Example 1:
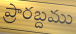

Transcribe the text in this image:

ప్రారబ్దము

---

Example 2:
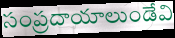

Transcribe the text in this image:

సంప్రదాయాలుండేవి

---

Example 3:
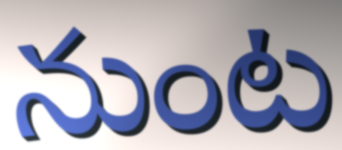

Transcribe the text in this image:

నుంట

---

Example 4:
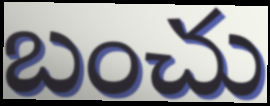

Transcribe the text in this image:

బంచు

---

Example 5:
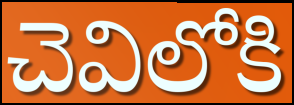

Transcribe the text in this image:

చెవిలోకి